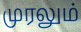
முரலும்